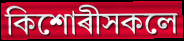
কিশোৰীসকলে